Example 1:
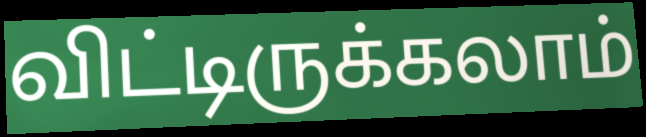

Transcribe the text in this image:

விட்டிருக்கலாம்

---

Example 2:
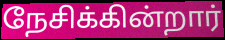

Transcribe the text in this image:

நேசிக்கின்றார்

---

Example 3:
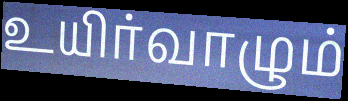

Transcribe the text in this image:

உயிர்வாழும்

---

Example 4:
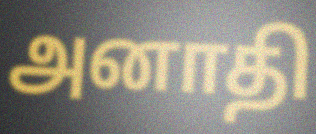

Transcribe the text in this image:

அனாதி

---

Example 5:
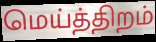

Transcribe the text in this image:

மெய்த்திறம்